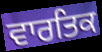
ਵਾਰਤਿਕ